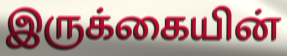
இருக்கையின்